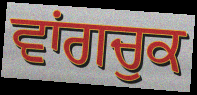
ਵਾਂਗਚੁਕ